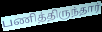
பணித்திருந்தார்